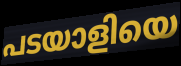
പടയാളിയെ